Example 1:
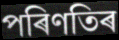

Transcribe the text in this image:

পৰিণতিৰ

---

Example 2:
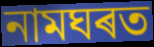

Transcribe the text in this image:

নামঘৰত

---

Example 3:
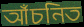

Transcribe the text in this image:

আঁচনিত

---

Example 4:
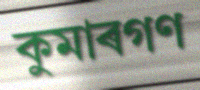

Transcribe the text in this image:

কুমাৰগণ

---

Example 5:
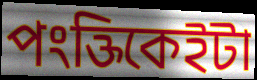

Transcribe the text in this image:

পংক্তিকেইটা